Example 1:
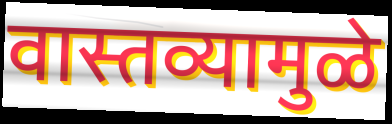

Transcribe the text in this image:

वास्तव्यामुळे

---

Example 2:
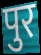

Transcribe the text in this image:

पुर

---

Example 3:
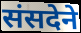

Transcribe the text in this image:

संसदेने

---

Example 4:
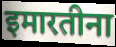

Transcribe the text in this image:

इमारतीना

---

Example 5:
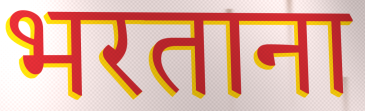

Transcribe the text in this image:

भरताना